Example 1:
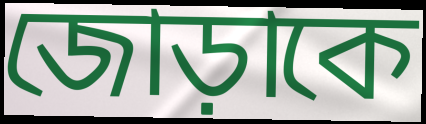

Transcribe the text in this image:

জোড়াকে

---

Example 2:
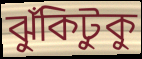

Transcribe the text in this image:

ঝুঁকিটুকু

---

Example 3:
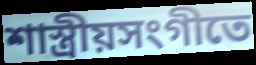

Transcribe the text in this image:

শাস্ত্রীয়সংগীতে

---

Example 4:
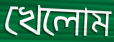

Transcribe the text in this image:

খেলোম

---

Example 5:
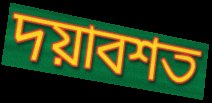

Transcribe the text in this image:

দয়াবশত